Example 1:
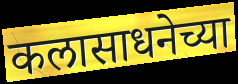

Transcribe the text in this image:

कलासाधनेच्या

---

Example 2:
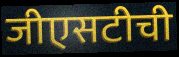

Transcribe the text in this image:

जीएसटीची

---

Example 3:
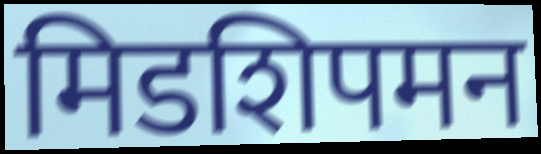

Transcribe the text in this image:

मिडशिपमन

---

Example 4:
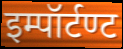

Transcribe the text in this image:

इम्पॉर्टण्ट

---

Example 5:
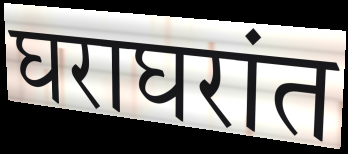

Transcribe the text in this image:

घराघरांत